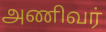
அணிவர்